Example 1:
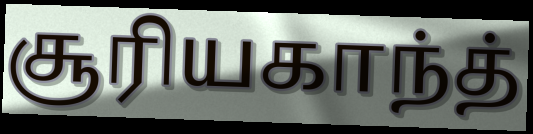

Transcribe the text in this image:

சூரியகாந்த்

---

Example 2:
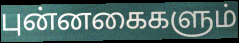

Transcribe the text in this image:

புன்னகைகளும்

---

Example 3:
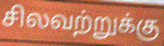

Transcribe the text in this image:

சிலவற்றுக்கு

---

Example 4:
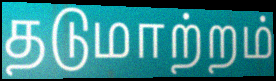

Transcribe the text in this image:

தடுமாற்றம்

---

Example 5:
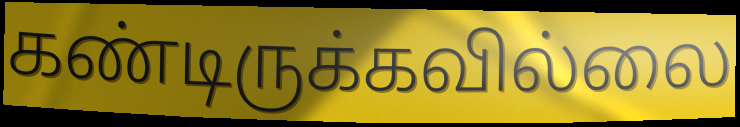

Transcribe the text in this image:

கண்டிருக்கவில்லை